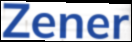
Zener